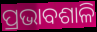
ପ୍ରଭାବଶାଳି